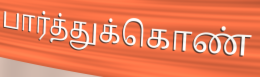
பார்த்துக்கொண்